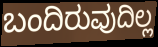
ಬಂದಿರುವುದಿಲ್ಲ